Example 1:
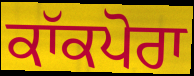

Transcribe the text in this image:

ਕਾੱਕਪੋਰਾ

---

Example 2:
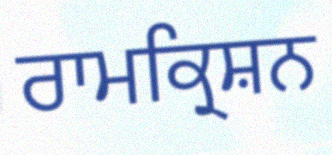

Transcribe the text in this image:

ਰਾਮਕ੍ਰਿਸ਼ਨ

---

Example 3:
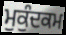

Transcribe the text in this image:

ਮੁਕੁੰਦਕਮ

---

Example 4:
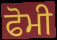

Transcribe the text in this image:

ਫੋਮੀ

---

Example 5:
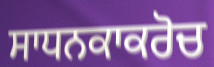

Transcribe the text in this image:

ਸਾਧਨਕਾਕਰੋਚ